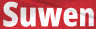
Suwen